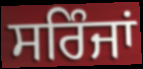
ਸਰਿੰਜਾਂ